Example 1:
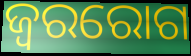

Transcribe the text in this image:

ଜ୍ୱରରୋଗ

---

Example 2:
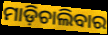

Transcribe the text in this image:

ମାଡ଼ିଚାଲିବାର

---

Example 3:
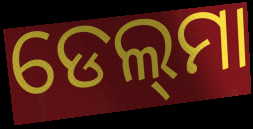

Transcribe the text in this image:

ଡେଲ୍‍ମା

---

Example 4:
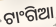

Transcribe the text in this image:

ଟାଂଗିଆ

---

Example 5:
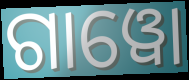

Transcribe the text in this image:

ଗାୱୋ